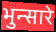
भुन्सारे